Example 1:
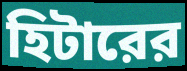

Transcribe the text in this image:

হিটারের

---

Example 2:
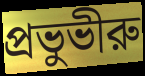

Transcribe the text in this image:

প্রভুভীরু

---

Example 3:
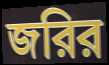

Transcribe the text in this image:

জরির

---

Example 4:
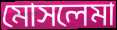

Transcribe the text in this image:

মোসলেমা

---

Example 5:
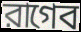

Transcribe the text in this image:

রাগেব